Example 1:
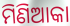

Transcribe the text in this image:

ମିଣିଆକା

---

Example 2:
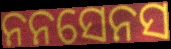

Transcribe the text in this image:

ନନସେନସ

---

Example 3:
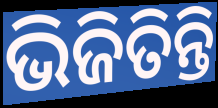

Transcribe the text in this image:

ଭିଜିତିନ୍ତି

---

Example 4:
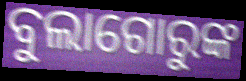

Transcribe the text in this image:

ବୁଲାଗୋରୁଙ୍କ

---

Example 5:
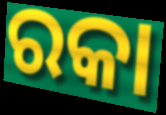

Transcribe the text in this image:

ରକା